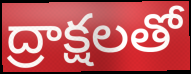
ద్రాక్షలతో